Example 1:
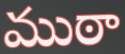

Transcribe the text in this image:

ముఠా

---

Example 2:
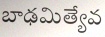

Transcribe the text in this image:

బాఢమిత్యేవ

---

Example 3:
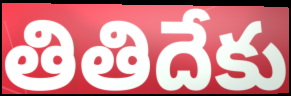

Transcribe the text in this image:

తితిదేకు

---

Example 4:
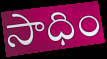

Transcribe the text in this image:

సాధిం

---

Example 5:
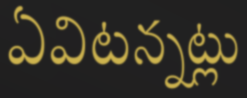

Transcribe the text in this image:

ఏవిటన్నట్లు